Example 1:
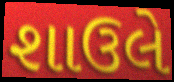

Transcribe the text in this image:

શાઉલે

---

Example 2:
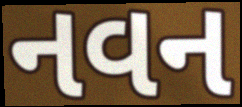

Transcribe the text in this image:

નવન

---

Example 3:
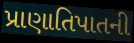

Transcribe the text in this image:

પ્રાણાતિપાતની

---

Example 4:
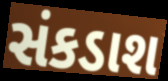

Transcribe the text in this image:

સંકડાશ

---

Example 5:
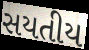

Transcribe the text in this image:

સયતીય